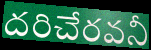
దరిచేరవనీ